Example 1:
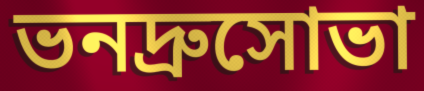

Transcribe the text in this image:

ভনদ্রুসোভা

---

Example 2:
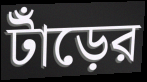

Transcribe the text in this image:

টাঁড়ের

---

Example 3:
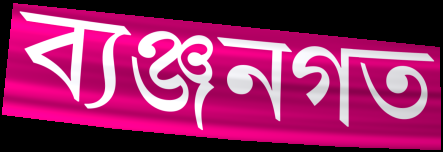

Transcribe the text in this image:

ব্যঞ্জনগত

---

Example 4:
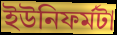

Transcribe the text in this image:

ইউনিফর্মটা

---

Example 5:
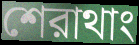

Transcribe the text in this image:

শেরাথাং